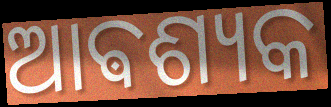
ଆଵଶ୍ୟକ